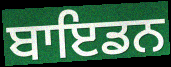
ਬਾਇਡਨ